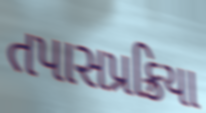
તપાસપ્રક્રિયા